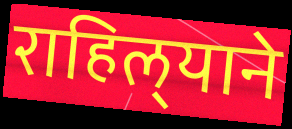
राहिल्याने